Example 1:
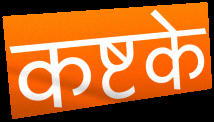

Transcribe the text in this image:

कष्टके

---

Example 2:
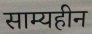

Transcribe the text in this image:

साम्यहीन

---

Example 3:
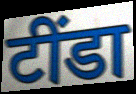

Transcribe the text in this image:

टींडा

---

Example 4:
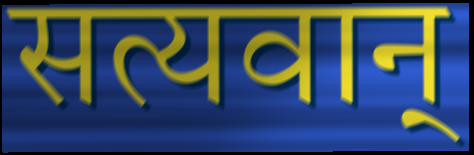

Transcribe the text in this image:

सत्यवान्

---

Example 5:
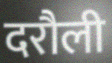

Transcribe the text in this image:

दरौली